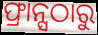
ଫ୍ରାନ୍ସଠାରୁ